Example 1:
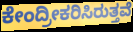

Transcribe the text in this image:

ಕೇಂದ್ರೀಕರಿಸಿರುತ್ತವೆ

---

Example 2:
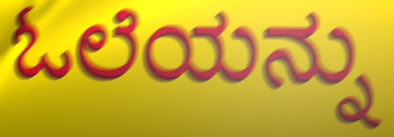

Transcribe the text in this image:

ಓಲೆಯನ್ನು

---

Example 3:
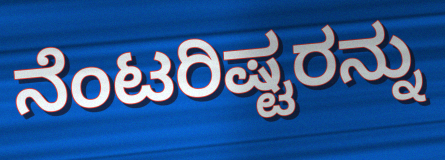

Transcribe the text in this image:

ನೆಂಟರಿಷ್ಟರನ್ನು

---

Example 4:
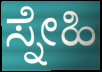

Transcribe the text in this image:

ಸ್ನೇಹಿ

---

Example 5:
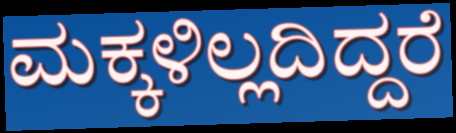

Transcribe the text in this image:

ಮಕ್ಕಳಿಲ್ಲದಿದ್ದರೆ